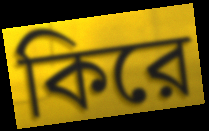
কিরে